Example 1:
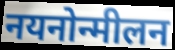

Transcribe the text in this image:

नयनोन्मीलन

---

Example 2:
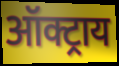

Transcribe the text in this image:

ऑक्ट्राय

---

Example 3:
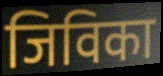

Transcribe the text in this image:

जिविका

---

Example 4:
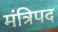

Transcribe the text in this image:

मंत्रिपद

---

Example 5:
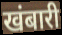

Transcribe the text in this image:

खंबारी